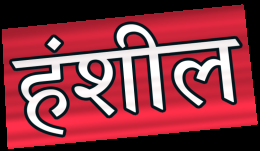
हंशील